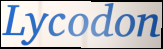
Lycodon